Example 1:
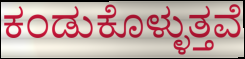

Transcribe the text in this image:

ಕಂಡುಕೊಳ್ಳುತ್ತವೆ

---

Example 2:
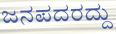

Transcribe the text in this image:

ಜನಪದರದ್ದು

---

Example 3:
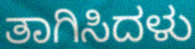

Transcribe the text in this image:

ತಾಗಿಸಿದಳು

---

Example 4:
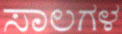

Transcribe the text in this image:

ಸಾಲಗಳ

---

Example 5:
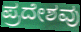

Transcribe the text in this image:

ಪ್ರದೇಶವು